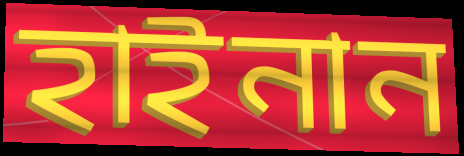
হাইনান